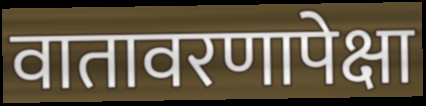
वातावरणापेक्षा